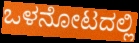
ಒಳನೋಟದಲ್ಲಿ